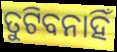
ତୁଟିବନାହିଁ